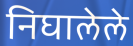
निघालेले